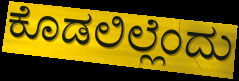
ಕೊಡಲಿಲ್ಲೆಂದು